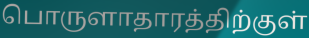
பொருளாதாரத்திற்குள்